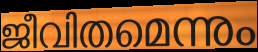
ജീവിതമെന്നും